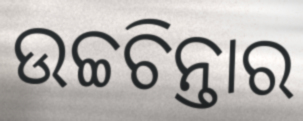
ଉଚ୍ଚଚିନ୍ତାର